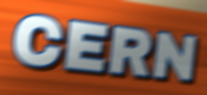
CERN